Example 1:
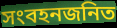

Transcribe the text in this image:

সংবহনজনিত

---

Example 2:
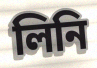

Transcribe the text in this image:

লিনি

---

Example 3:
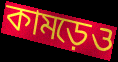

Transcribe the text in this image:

কামড়েও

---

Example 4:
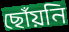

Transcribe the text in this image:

ছোঁয়নি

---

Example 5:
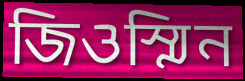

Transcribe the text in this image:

জিওস্মিন